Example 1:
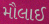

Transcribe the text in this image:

મૌલાઈ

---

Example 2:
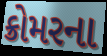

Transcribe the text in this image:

ક્રોમરના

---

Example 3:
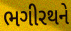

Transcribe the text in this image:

ભગીરથને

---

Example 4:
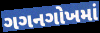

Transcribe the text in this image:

ગગનગોખમાં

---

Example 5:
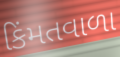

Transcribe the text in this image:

કિંમતવાળા